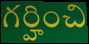
గర్హించి